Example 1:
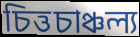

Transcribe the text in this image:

চিত্তচাঞ্চল্য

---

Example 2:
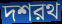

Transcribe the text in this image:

দশরথ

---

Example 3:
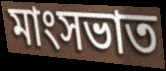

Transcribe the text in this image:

মাংসভাত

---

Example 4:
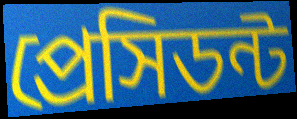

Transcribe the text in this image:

প্রেসিডন্ট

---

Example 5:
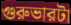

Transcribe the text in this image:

গুরুভারটা